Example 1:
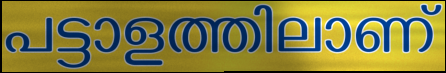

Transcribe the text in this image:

പട്ടാളത്തിലാണ്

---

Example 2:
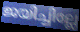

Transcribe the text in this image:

ജയിച്ചില്ലേ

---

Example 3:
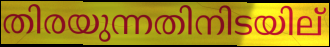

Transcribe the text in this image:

തിരയുന്നതിനിടയില്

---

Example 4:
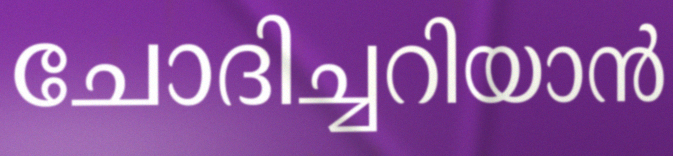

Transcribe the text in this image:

ചോദിച്ചറിയാൻ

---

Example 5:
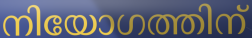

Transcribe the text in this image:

നിയോഗത്തിന്